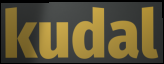
kudal